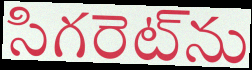
సిగరెట్‌ను